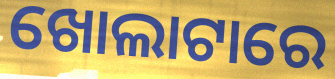
ଖୋଲାଟାରେ